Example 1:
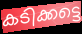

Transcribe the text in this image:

കടിക്കട്ടെ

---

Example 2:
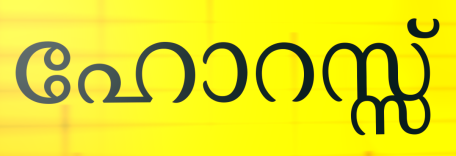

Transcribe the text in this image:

ഹോറസ്സ്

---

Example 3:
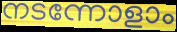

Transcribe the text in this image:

നടന്നോളാം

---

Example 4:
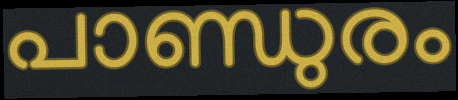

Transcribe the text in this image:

പാണ്ഡുരം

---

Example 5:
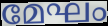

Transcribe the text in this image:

മേഘം